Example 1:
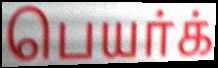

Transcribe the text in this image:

பெயர்க்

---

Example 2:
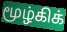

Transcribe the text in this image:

மூழ்கிக்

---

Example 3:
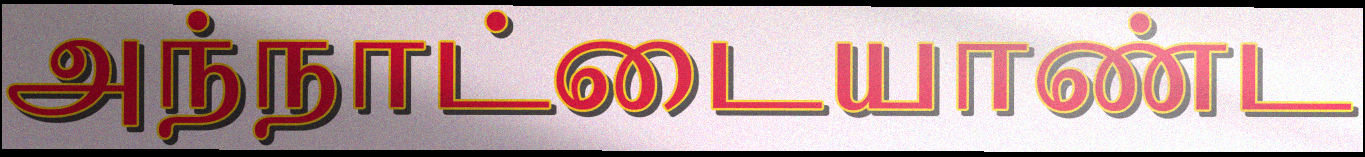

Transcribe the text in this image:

அந்நாட்டையாண்ட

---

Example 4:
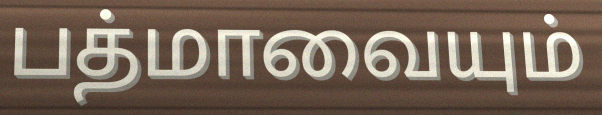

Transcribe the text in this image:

பத்மாவையும்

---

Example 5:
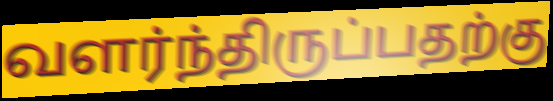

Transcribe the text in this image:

வளர்ந்திருப்பதற்கு